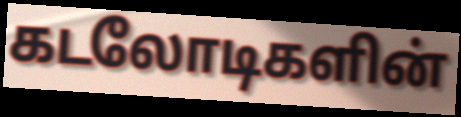
கடலோடிகளின்